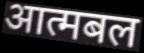
आत्मबल